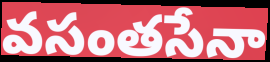
వసంతసేనా